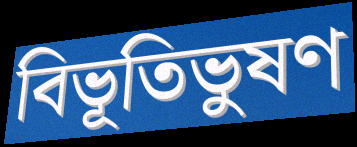
বিভূতিভুষণ